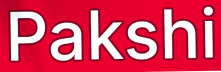
Pakshi